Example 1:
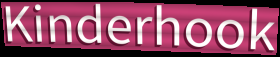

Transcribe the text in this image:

Kinderhook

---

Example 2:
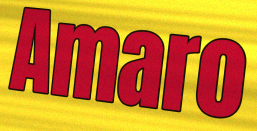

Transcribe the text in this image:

Amaro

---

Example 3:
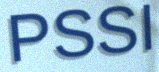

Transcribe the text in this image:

PSSI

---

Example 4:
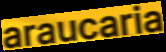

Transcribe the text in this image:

araucaria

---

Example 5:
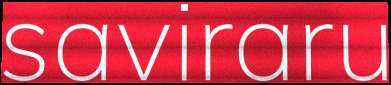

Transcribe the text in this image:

saviraru